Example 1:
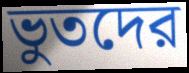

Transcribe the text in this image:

ভুতদের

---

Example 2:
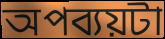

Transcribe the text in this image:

অপব্যয়টা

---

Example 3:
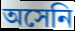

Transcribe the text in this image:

অসেনি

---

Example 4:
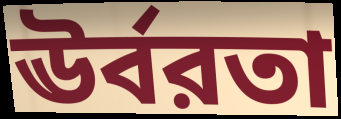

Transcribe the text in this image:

ঊর্বরতা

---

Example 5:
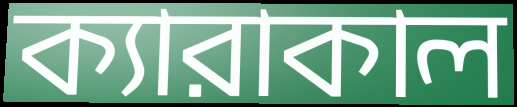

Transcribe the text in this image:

ক্যারাকাল